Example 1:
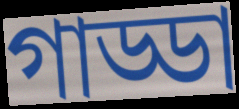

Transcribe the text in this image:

গাড্ডা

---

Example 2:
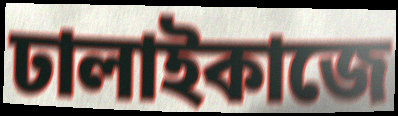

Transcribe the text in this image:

ঢালাইকাজে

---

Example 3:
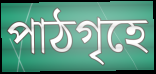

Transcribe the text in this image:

পাঠগৃহে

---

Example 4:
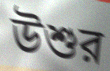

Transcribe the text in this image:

উশুর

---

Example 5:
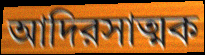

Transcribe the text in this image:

আদিরসাত্মক